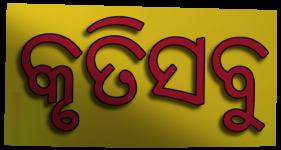
କୃତିସବୁ